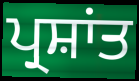
ਪ੍ਰਸ਼ਾਂਤ